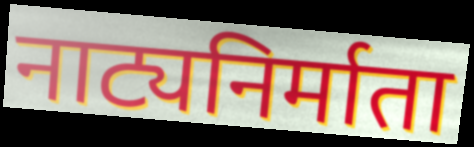
नाट्यनिर्माता